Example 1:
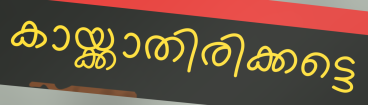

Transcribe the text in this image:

കായ്ക്കാതിരിക്കട്ടെ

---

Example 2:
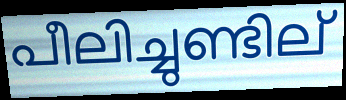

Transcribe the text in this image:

പീലിച്ചുണ്ടില്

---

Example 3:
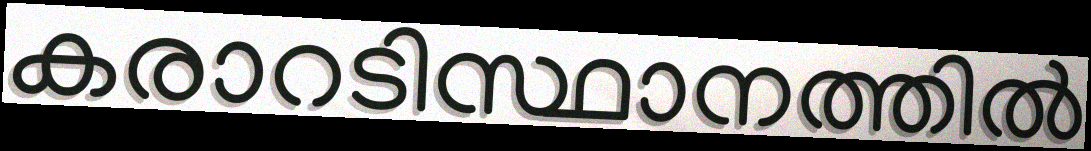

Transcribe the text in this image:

കരാറടിസ്ഥാനത്തിൽ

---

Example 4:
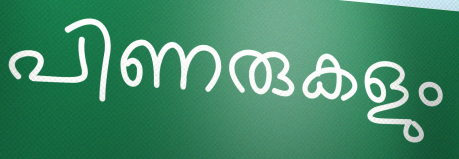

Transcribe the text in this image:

പിണരുകളും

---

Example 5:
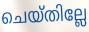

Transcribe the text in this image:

ചെയ്തില്ലേ